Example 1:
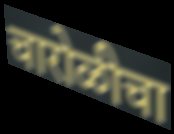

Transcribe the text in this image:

चारोळीचा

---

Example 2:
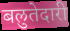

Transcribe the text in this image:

बलुतेदारी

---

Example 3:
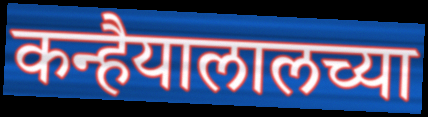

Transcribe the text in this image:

कन्हैयालालच्या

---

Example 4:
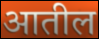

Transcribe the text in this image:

आतील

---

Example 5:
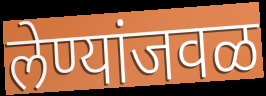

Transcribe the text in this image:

लेण्यांजवळ